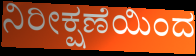
ನಿರೀಕ್ಷಣೆಯಿಂದ